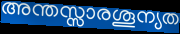
അന്തസ്സാരശൂന്യത